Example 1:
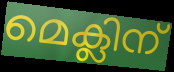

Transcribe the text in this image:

മെക്ലിന്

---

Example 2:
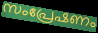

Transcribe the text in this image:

സംപ്രേഷണം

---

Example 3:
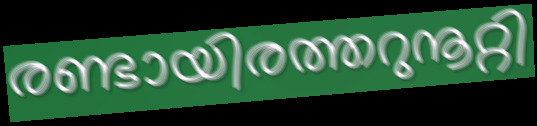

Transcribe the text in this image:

രണ്ടായിരത്തറുനൂറ്റി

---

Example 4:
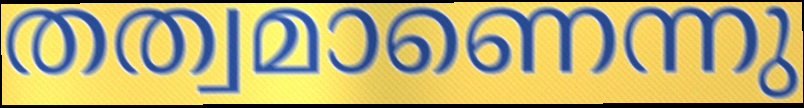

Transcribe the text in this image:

തത്വമാണെന്നു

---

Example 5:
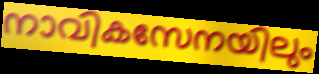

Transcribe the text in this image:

നാവികസേനയിലും